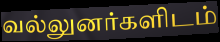
வல்லுனர்களிடம்